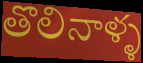
తొలినాళ్ళ